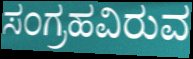
ಸಂಗ್ರಹವಿರುವ